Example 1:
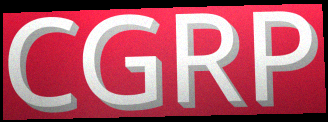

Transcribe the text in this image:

CGRP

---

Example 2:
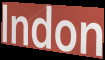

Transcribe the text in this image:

Indon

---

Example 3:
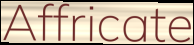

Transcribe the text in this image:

Affricate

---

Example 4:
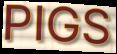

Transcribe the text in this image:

PIGS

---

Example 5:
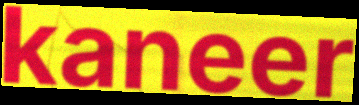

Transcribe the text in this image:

kaneer